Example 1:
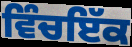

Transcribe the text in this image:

ਵਿੰਚਇੱਕ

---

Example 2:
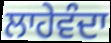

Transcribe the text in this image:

ਲਾਹੇਵੰਦਾ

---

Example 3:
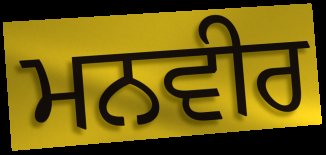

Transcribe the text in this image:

ਮਨਵੀਰ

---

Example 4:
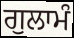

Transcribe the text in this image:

ਗੁਲਾਮੰ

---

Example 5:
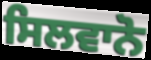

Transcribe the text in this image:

ਸਿਲਵਾਨੋ